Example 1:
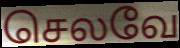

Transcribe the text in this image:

செலவே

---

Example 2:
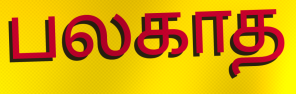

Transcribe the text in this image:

பலகாத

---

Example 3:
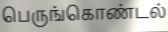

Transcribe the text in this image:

பெருங்கொண்டல்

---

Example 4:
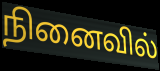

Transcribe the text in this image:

நினைவில்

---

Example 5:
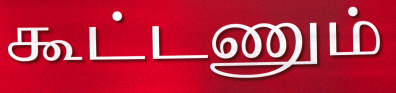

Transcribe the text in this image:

கூட்டணும்